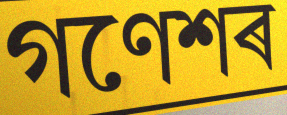
গণেশৰ